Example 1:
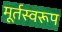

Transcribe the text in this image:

मूर्तस्वरूप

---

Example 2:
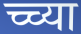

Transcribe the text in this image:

च्च्या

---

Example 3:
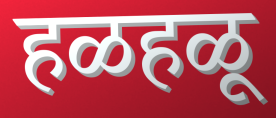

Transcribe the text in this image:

हळहळू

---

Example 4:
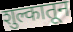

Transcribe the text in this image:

शुल्कातून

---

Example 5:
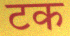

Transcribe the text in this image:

टक